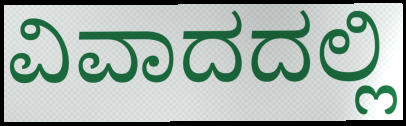
ವಿವಾದದಲ್ಲಿ